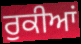
ਰੁਕੀਆਂ